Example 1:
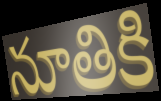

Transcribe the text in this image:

నూతికి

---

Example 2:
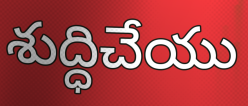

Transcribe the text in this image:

శుద్ధిచేయు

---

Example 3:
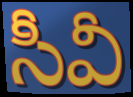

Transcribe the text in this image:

సీవీ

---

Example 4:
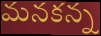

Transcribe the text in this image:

మనకన్న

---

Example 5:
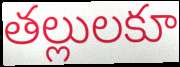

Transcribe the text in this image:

తల్లులకూ